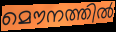
മൌനത്തിൽ